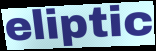
eliptic